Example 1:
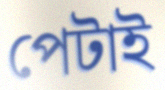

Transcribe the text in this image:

পেটাই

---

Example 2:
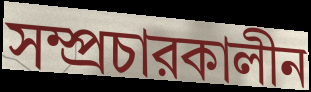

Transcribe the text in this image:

সম্প্রচারকালীন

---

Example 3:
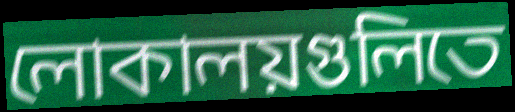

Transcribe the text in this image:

লোকালয়গুলিতে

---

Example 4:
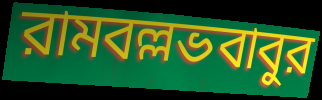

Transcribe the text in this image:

রামবল্লভবাবুর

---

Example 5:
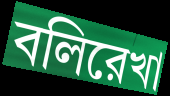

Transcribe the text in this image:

বলিরেখা